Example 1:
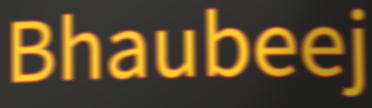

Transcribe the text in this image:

Bhaubeej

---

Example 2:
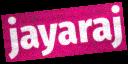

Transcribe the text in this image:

jayaraj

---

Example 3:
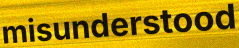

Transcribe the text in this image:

misunderstood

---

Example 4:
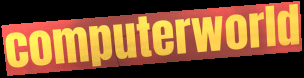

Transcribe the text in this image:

computerworld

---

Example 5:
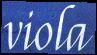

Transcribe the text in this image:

viola